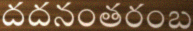
దదనంతరంబ